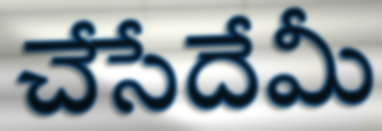
చేసేదేమీ